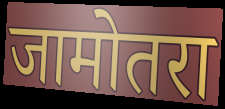
जामोतरा